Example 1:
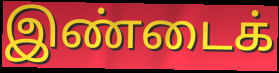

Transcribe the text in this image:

இண்டைக்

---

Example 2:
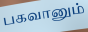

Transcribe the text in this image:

பகவானும்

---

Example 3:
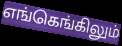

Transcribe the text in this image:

எங்கெங்கிலும்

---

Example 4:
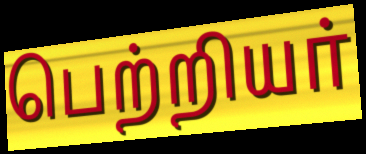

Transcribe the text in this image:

பெற்றியர்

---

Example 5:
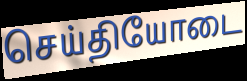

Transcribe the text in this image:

செய்தியோடை